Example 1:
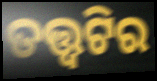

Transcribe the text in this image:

ତତ୍ତ୍ଵଟିର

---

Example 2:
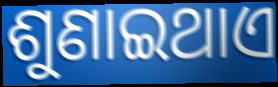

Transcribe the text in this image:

ଶୁଣାଇଥାଏ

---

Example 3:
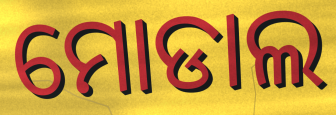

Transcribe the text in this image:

ମୋଡାଲ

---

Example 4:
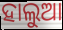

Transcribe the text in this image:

ହାଲୁଆ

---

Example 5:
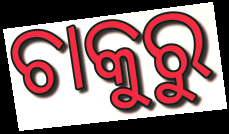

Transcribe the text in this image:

ଚାକୁରୁ